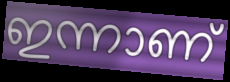
ഇന്നാണ്